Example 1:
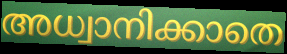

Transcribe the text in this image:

അധ്വാനിക്കാതെ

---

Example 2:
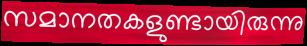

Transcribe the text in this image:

സമാനതകളുണ്ടായിരുന്നു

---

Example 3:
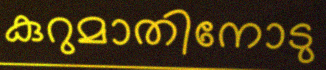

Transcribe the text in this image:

കുറുമാതിനോടു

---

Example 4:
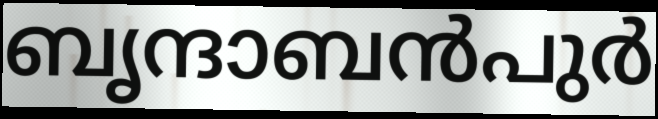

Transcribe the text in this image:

ബൃന്ദാബൻപുർ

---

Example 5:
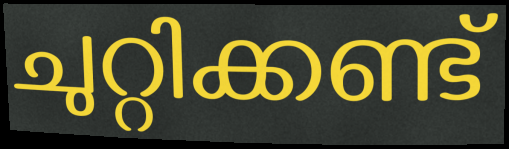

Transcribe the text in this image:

ചുറ്റിക്കണ്ട്